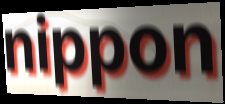
nippon